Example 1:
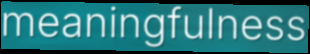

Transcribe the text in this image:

meaningfulness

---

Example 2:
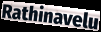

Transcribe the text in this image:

Rathinavelu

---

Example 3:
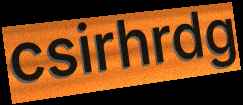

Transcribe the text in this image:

csirhrdg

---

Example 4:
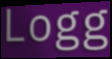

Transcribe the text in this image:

Logg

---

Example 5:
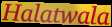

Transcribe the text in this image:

Halatwala